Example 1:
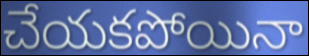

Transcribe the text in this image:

చేయకపోయినా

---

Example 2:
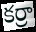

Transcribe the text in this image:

కర్రా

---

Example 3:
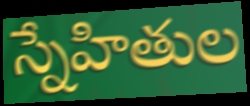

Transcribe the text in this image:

స్నేహితుల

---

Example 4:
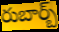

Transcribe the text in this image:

రుబార్బ్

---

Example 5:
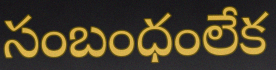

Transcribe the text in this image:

సంబంధంలేక